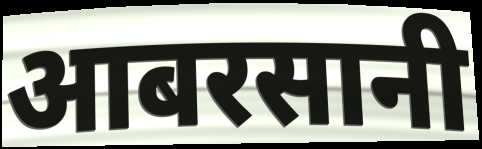
आबरसानी